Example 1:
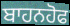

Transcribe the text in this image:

ਬਾਹਨਹੋਫ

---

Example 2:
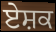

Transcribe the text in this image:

ਏਸ਼ਕ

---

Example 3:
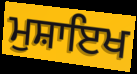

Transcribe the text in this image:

ਮੁਸ਼ਾਇਖ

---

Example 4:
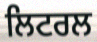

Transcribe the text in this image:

ਲਿਟਰਲ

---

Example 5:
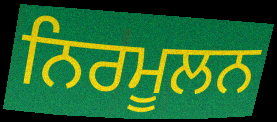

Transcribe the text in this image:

ਨਿਰਮੂਲਨ